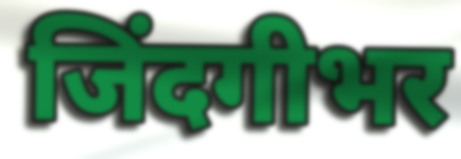
जिंदगीभर